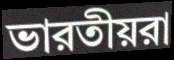
ভারতীয়রা